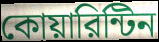
কোয়ারিন্টিন